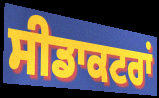
ਸੀਡਾਕਟਰਾਂ